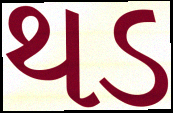
થડ